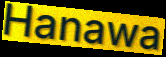
Hanawa